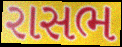
રાસભ